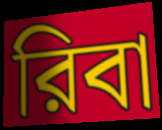
রিবা